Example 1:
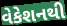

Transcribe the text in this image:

વેકેશનથી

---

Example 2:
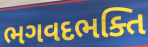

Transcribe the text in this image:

ભગવદભક્તિ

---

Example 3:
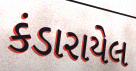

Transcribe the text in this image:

કંડારાયેલ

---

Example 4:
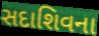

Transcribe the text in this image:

સદાશિવના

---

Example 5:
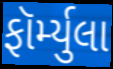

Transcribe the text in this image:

ફૉર્મ્યુલા